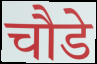
चौडे